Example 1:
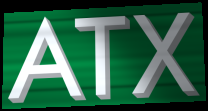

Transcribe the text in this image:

ATX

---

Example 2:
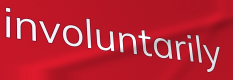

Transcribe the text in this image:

involuntarily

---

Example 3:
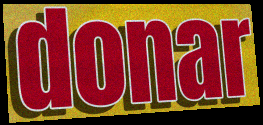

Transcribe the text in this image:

donar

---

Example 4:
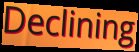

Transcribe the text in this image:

Declining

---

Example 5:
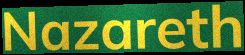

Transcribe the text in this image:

Nazareth